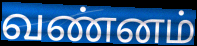
வண்னம்